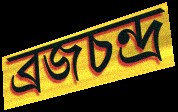
ব্রজচন্দ্র